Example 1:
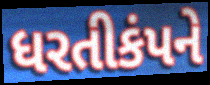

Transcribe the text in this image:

ધરતીકંપને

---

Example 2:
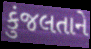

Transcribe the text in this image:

કુંજલતાને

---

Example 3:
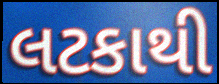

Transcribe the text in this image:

લટકાથી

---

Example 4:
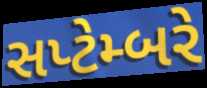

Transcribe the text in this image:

સપ્ટેમ્બરે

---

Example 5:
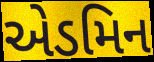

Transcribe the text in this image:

એડમિન